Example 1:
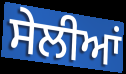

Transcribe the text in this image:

ਸੇਲੀਆਂ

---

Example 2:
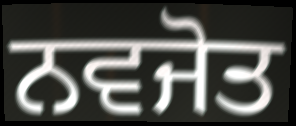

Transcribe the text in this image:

ਨਵਜੋਤ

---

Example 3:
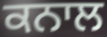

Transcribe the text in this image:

ਕਨਾਲ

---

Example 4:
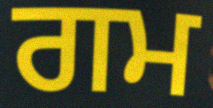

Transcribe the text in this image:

ਗਮ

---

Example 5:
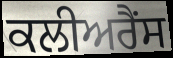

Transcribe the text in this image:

ਕਲੀਅਰੈਂਸ